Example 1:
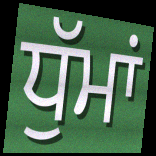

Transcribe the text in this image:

ਧੁੱਮਾਂ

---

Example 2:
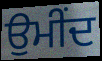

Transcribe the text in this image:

ਉਮੀਂਦ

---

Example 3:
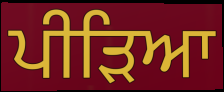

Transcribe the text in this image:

ਪੀੜਿਆ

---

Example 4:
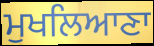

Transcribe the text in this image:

ਮੁਖਲਿਆਣਾ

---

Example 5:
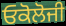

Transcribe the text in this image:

ਓਕੋਲੋਜੀ